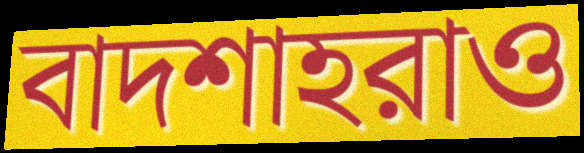
বাদশাহরাও